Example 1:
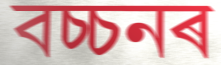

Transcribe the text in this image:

বচ্চনৰ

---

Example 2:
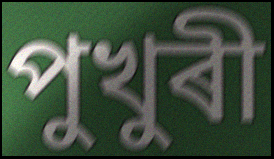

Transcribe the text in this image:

পুখুৰী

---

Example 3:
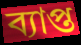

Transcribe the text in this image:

ব্যাপ্ত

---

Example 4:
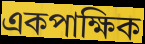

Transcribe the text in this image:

একপাক্ষিক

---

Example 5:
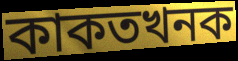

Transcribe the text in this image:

কাকতখনক